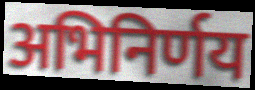
अभिनिर्णय